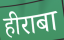
हीराबा